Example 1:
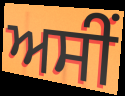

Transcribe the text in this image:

ਅਸੀੰ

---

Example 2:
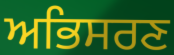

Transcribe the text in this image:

ਅਭਿਸਰਣ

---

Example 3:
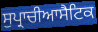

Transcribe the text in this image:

ਸੁਪ੍ਰਾਚੀਆਸੈਟਿਕ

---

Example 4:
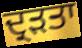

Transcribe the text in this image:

ਦ੍ਰੜਤਾ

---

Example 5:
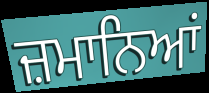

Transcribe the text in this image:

ਜ਼ਮਾਨਿਆਂ